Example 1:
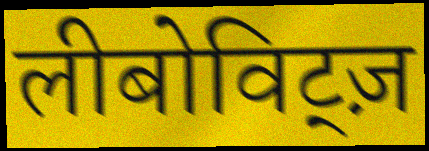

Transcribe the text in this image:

लीबोविट्ज़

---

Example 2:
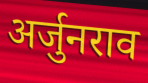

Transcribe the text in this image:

अर्जुनराव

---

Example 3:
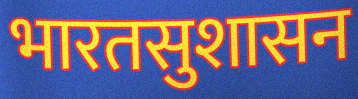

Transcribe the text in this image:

भारतसुशासन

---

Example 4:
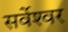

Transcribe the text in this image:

सर्वेश्‍वर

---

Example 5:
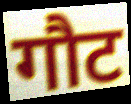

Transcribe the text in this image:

गौट